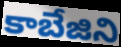
కాబేజిని